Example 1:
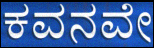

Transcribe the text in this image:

ಕವನವೇ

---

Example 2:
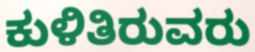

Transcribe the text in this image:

ಕುಳಿತಿರುವರು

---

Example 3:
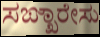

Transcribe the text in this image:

ಸಙ್ಖಾರೇಸು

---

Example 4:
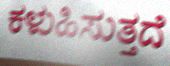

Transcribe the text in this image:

ಕಳುಹಿಸುತ್ತದೆ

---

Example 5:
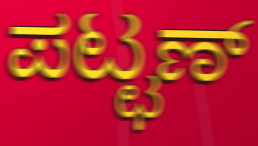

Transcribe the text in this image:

ಪಟ್ಟಣ್